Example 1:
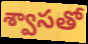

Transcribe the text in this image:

శ్వాసతో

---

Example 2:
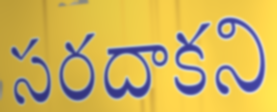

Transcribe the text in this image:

సరదాకని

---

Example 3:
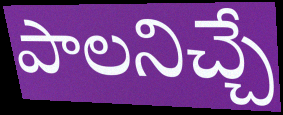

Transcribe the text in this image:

పాలనిచ్చే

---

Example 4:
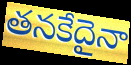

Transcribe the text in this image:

తనకేదైనా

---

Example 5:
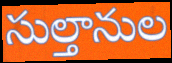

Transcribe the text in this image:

సుల్తానుల